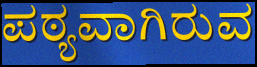
ಪಠ್ಯವಾಗಿರುವ